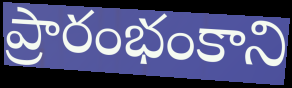
ప్రారంభంకాని